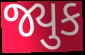
જ્યુક